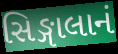
સિઙ્ગાલાનં